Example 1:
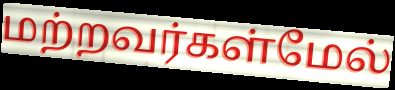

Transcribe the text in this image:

மற்றவர்கள்மேல்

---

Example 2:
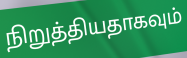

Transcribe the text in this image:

நிறுத்தியதாகவும்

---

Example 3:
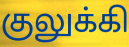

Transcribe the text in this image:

குலுக்கி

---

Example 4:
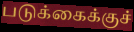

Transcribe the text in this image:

படுக்கைக்குச்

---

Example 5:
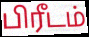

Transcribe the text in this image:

பிரீடம்